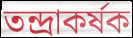
তন্দ্রাকর্ষক